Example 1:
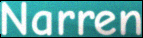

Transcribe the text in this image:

Narren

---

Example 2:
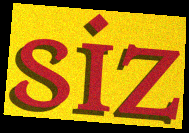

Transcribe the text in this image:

siz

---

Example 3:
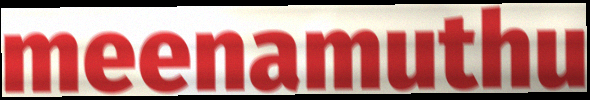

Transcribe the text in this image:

meenamuthu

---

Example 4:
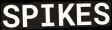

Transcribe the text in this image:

SPIKES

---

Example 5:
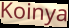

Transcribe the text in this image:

Koinya